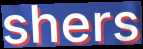
shers